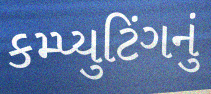
કમ્પ્યુટિંગનું